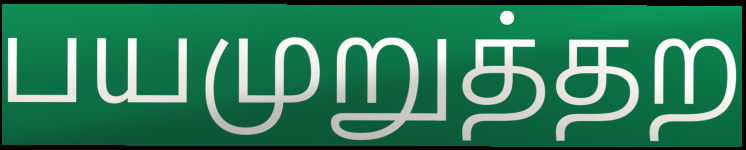
பயமுறுத்தற